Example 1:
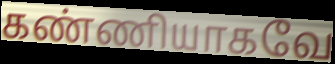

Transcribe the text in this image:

கண்ணியாகவே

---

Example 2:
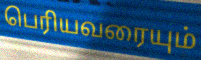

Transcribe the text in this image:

பெரியவரையும்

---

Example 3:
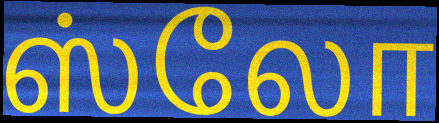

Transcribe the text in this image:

ஸ்லோ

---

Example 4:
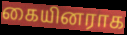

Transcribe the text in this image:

கையினராக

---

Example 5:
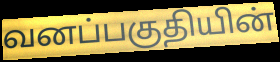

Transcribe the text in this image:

வனப்பகுதியின்